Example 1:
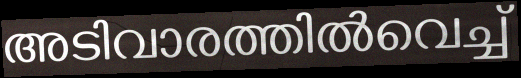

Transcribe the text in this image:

അടിവാരത്തിൽവെച്ച്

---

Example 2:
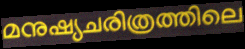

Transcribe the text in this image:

മനുഷ്യചരിത്രത്തിലെ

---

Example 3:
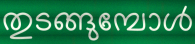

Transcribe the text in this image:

തുടങ്ങുമ്പോൾ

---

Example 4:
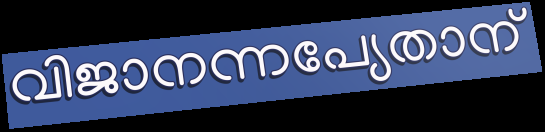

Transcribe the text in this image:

വിജാനന്നപ്യേതാന്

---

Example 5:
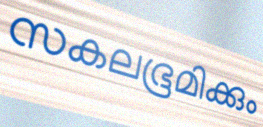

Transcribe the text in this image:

സകലഭൂമിക്കും